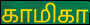
காமிகா